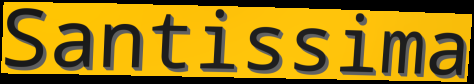
Santissima